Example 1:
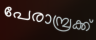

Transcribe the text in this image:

പേരാമ്പ്രക്ക്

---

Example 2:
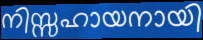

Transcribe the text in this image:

നിസ്സഹായനായി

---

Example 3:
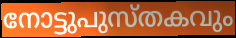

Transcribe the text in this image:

നോട്ടുപുസ്തകവും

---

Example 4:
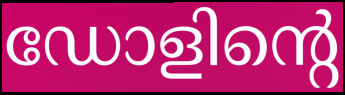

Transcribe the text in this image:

ഡോളിന്റെ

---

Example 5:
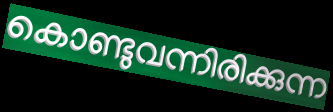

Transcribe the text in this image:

കൊണ്ടുവന്നിരിക്കുന്ന